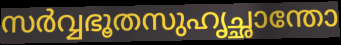
സർവ്വഭൂതസുഹൃച്ഛാന്തോ